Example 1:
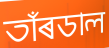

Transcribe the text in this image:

তাঁৰডাল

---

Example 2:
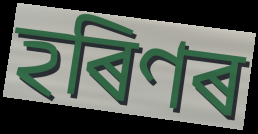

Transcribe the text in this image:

হৰিণৰ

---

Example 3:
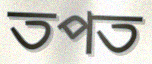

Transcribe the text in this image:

তপত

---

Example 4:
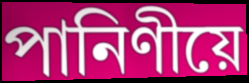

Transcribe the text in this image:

পানিণীয়ে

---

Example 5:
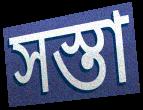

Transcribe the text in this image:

সস্তা